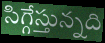
సిగ్గేస్తున్నది